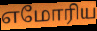
எமோரிய